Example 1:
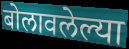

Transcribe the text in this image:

बोलावलेल्या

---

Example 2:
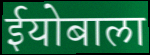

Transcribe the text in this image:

ईयोबाला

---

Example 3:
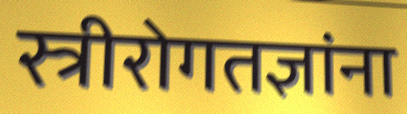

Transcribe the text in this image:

स्त्रीरोगतज्ञांना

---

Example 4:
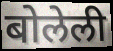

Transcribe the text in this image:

बोलेली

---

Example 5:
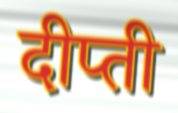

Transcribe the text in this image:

दीप्ती